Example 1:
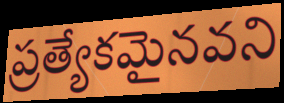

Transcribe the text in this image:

ప్రత్యేకమైనవని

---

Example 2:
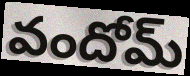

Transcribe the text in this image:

వందోమ్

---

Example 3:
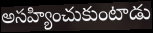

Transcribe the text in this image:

అసహ్యించుకుంటాడు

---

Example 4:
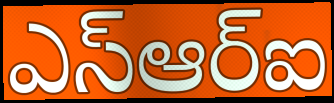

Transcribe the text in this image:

ఎస్ఆర్ఐ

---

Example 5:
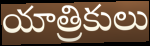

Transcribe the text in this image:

యాత్రికులు